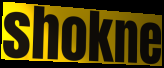
shokne